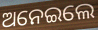
ଅନେଇଲେ